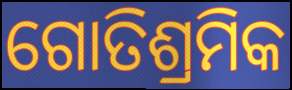
ଗୋତିଶ୍ରମିକ